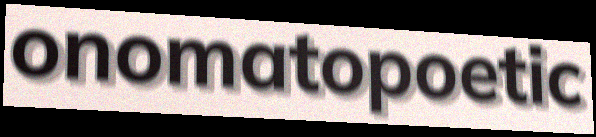
onomatopoetic